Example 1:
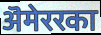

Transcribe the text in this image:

ऄमेररका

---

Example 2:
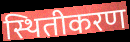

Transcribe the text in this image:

स्थितीकरण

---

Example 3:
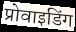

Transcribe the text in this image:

प्रोवाइडिंग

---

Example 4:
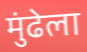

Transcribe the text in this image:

मुंढेला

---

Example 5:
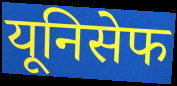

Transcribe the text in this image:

यूनिसेफ